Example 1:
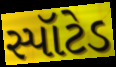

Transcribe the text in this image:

સ્પૉટેડ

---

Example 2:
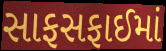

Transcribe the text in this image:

સાફસફાઈમાં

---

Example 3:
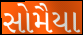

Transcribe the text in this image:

સોમૈયા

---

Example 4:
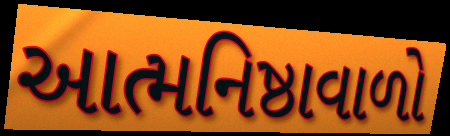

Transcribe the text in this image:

આત્મનિષ્ઠાવાળો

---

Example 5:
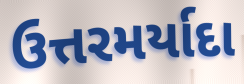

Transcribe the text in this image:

ઉત્તરમર્યાદા